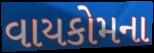
વાયકોમના